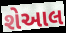
શેઆલ